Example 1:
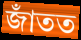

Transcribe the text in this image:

জাঁতত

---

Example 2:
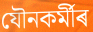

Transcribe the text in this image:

যৌনকৰ্মীৰ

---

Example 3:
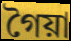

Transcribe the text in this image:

গৈয়া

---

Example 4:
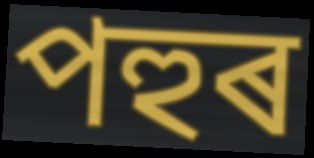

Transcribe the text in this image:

পহুৰ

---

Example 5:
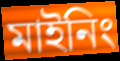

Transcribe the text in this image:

মাইনিং